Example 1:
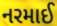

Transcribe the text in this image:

નરમાઈ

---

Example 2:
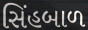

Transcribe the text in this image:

સિંહબાળ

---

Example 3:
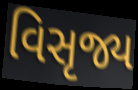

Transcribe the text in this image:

વિસૃજ્ય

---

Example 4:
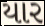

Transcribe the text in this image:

યાર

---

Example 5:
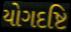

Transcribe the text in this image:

યોગદષ્ટિ